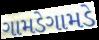
ગામડેગામડે